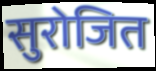
सुरोजित